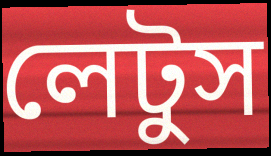
লেটুস